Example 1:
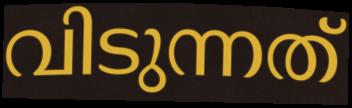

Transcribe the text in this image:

വിടുന്നത്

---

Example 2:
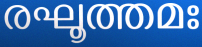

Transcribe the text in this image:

രഘൂത്തമഃ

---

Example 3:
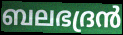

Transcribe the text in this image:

ബലഭദ്രൻ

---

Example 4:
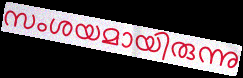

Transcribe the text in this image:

സംശയമായിരുന്നു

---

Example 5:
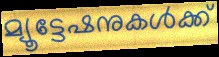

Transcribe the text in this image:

മ്യൂട്ടേഷനുകൾക്ക്